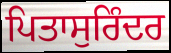
ਪਿਤਾਸੁਰਿੰਦਰ